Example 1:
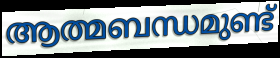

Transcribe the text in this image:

ആത്മബന്ധമുണ്ട്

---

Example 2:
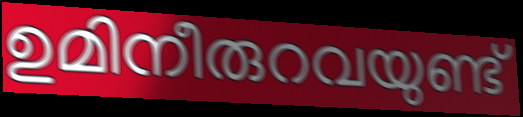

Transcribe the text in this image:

ഉമിനീരുറവയുണ്ട്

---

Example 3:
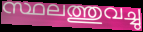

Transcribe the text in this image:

സ്ഥലത്തുവച്ചു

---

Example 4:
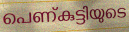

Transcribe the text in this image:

പെണ്കുട്ടിയുടെ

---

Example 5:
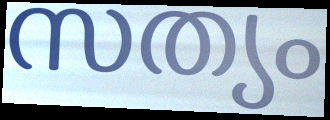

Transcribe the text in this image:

സത്യം